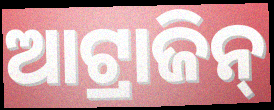
ଆଟ୍ରାଜିନ୍